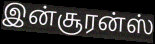
இன்சூரன்ஸ்